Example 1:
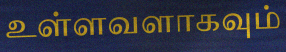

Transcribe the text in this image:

உள்ளவளாகவும்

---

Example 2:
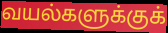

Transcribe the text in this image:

வயல்களுக்குக்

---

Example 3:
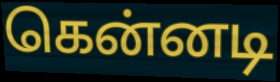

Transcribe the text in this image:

கென்னடி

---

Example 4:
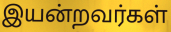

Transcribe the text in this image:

இயன்றவர்கள்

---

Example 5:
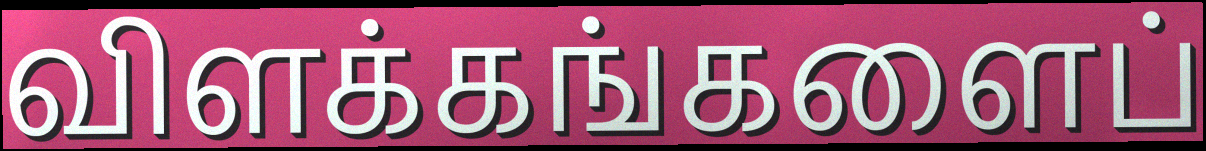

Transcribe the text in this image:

விளக்கங்களைப்